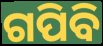
ଗପିବି